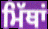
ਮਿੱਥਾਂ